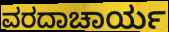
ವರದಾಚಾರ್ಯ